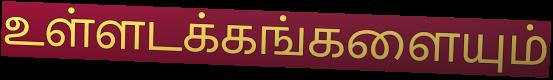
உள்ளடக்கங்களையும்